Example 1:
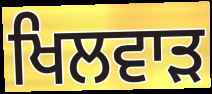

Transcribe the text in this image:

ਖਿਲਵਾੜ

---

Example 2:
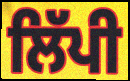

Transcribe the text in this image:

ਲਿੱਪੀ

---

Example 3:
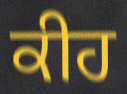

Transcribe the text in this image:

ਕੀਹ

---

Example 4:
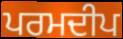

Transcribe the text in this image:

ਪਰਮਦੀਪ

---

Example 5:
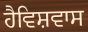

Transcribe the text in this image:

ਹੈਵਿਸ਼ਵਾਸ